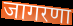
जागरणा